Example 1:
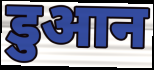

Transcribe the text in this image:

डुआन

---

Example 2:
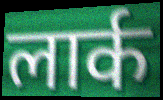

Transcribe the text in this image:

लार्क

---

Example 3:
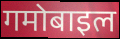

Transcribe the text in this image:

गमोबाइल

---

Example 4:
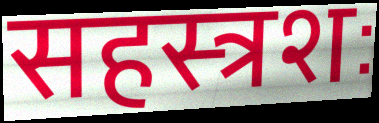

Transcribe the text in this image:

सहस्त्रशः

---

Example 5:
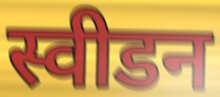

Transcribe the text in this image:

स्वीडन